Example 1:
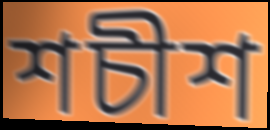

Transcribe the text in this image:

শচীশ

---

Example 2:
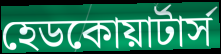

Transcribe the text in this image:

হেডকোয়ার্টার্স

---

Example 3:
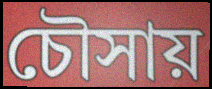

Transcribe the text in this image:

চৌসায়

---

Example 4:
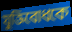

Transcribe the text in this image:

যুক্তিবোধকে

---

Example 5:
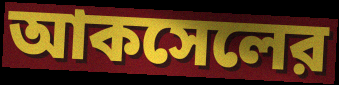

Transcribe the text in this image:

আকসেলের